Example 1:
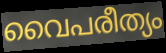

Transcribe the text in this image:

വൈപരീത്യം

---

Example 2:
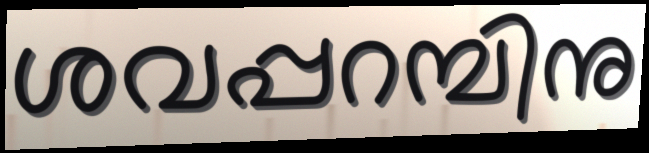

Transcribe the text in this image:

ശവപ്പറമ്പിനു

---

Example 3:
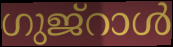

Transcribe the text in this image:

ഗുജ്റാൾ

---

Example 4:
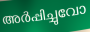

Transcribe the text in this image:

അർപ്പിച്ചുവോ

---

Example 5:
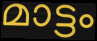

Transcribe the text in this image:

മാട്ടം